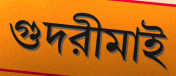
গুদরীমাই